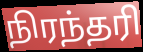
நிரந்தரி